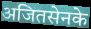
अजितसेनके